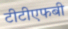
टीटीएफबी